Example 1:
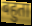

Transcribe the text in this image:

बहुता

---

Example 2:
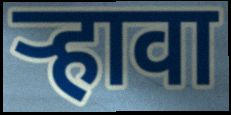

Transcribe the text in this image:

ऱ्हावा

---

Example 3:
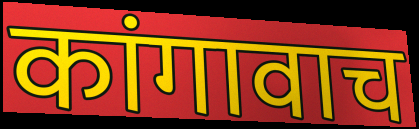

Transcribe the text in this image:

कांगावाच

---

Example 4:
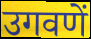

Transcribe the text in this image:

उगवणें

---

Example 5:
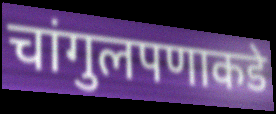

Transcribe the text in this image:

चांगुलपणाकडे